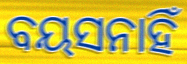
ବୟସନାହିଁ